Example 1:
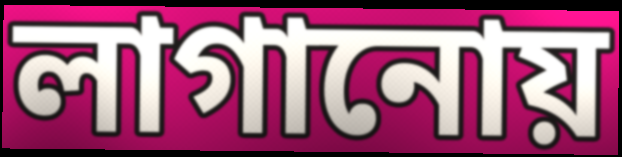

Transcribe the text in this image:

লাগানোয়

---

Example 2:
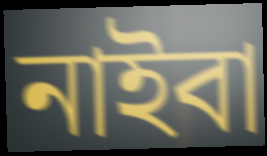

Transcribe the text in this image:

নাইবা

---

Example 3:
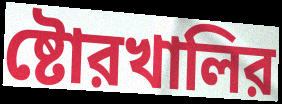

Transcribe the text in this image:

ষ্টোরখালির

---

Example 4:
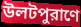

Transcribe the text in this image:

উলটপুরাণে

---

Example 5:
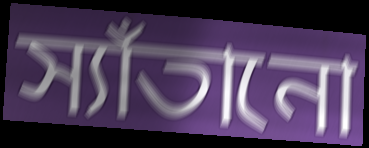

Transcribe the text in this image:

স্যাঁতানো